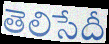
తెలిసేదీ